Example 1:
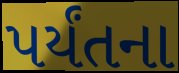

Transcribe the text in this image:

પર્યંતના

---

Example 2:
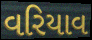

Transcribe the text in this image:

વરિયાવ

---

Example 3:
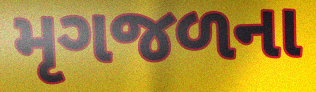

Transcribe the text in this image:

મૃગજળના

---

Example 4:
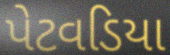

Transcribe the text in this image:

પેટવડિયા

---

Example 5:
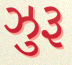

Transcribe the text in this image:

ઝુરૂ